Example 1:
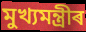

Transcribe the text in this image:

মুখ্যমন্ত্ৰীৰ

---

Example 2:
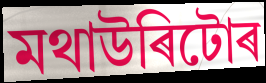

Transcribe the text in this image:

মথাউৰিটোৰ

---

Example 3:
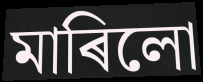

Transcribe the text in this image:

মাৰিলো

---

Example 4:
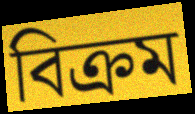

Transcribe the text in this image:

বিক্ৰম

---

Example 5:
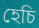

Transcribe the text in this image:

হেচি